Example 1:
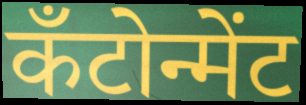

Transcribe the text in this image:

कँटोन्मेंट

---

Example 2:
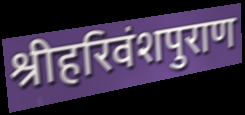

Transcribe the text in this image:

श्रीहरिवंशपुराण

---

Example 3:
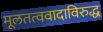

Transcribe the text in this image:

मूलतत्ववादाविरुद्ध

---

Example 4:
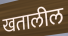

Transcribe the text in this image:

खतालील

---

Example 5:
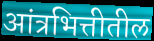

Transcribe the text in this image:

आंत्रभित्तीतील